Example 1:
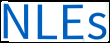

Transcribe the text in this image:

NLEs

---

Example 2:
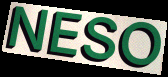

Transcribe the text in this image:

NESO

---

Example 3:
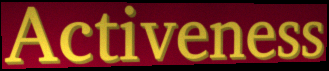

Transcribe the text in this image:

Activeness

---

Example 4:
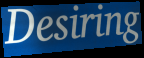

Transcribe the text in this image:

Desiring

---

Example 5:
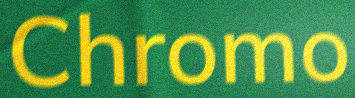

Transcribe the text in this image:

Chromo